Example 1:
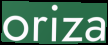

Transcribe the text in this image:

oriza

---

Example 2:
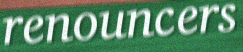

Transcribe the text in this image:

renouncers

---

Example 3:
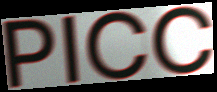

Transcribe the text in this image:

PICC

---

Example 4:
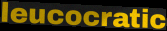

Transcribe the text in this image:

leucocratic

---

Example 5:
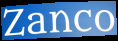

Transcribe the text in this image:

Zanco